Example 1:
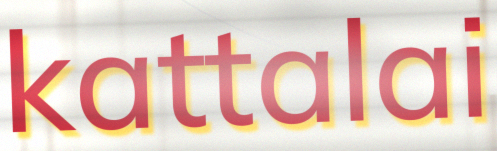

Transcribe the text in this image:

kattalai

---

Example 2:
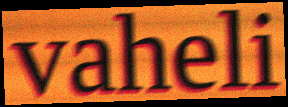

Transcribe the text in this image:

vaheli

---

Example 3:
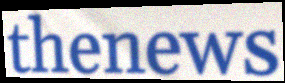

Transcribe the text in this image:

thenews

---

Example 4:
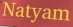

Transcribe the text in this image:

Natyam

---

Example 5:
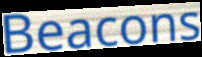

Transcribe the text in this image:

Beacons